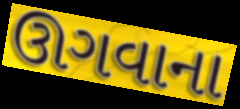
ઊગવાના